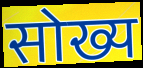
सोख्य